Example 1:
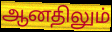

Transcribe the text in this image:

ஆனதிலும்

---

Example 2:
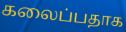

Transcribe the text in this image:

கலைப்பதாக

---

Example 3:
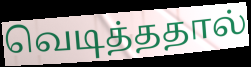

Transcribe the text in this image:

வெடித்ததால்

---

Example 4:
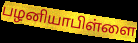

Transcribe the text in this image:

பழனியாபிள்ளை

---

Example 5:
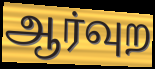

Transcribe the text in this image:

ஆர்வுற